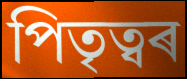
পিতৃত্বৰ